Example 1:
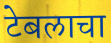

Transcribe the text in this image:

टेबलाचा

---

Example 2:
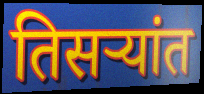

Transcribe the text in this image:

तिसर्‍यांत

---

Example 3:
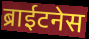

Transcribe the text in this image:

ब्राईटनेस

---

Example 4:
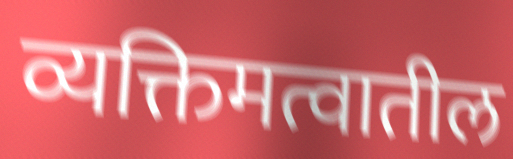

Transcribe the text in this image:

व्यक्तिमत्वातील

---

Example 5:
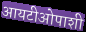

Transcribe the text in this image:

आयटीओपाशी